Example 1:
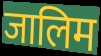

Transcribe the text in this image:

जालिम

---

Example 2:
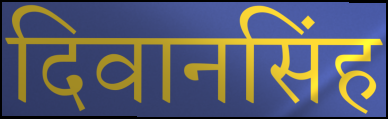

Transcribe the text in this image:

दिवानसिंह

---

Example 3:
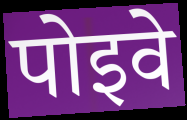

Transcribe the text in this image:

पोइवे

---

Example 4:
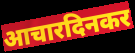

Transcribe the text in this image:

आचारदिनकर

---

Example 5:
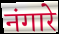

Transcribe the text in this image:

नंगारे